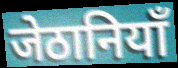
जेठानियाँ